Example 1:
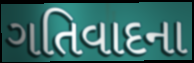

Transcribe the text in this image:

ગતિવાદના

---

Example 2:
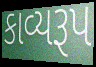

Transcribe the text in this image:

કાવ્યરૂપ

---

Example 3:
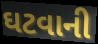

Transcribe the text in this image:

ઘટવાની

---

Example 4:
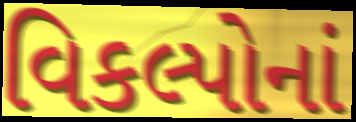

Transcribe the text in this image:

વિકલ્પોનાં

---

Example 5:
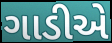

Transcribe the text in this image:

ગાડીએ